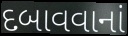
દબાવવાનાં